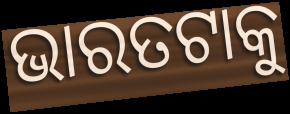
ଭାରତଟାକୁ